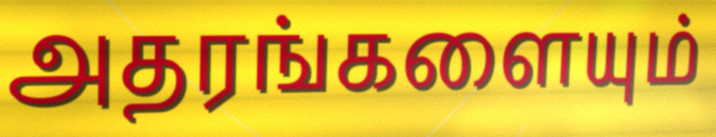
அதரங்களையும்